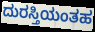
ದುರಸ್ತಿಯಂತಹ